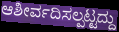
ಆಶೀರ್ವದಿಸಲ್ಪಟ್ಟದ್ದು